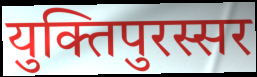
युक्तिपुरस्सर